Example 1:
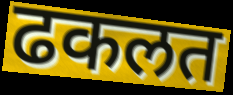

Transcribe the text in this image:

ढकलत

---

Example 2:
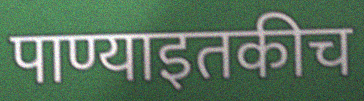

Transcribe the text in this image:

पाण्याइतकीच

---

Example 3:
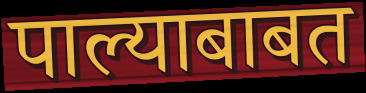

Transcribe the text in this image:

पाल्याबाबत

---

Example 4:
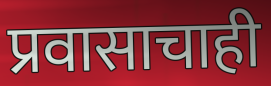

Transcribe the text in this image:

प्रवासाचाही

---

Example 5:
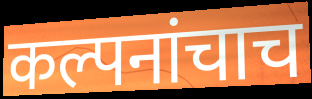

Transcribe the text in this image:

कल्पनांचाच